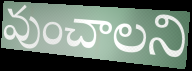
వుంచాలని